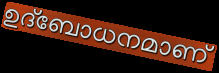
ഉദ്ബോധനമാണ്